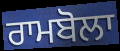
ਰਾਮਬੋਲਾ